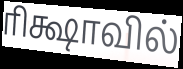
ரிக்ஷாவில்